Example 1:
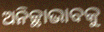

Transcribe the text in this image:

ଅନିଚ୍ଛାଭାବକୁ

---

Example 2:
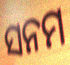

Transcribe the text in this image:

ସନମ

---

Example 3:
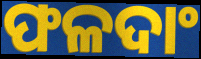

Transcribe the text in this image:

ଫଳଦାଂ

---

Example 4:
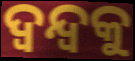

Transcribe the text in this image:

ଦ୍ଵନ୍ଦ୍ଵକୁ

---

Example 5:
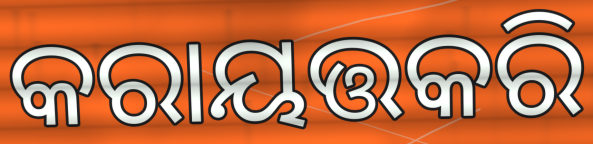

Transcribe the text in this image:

କରାୟତ୍ତକରି